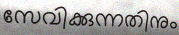
സേവിക്കുന്നതിനും